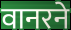
वानरने